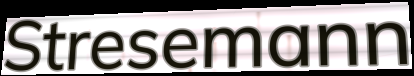
Stresemann